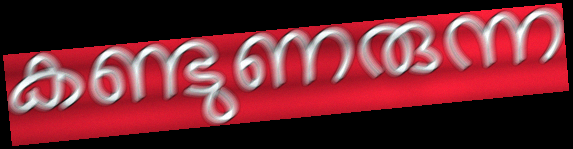
കണ്ടുണരുന്ന